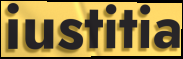
iustitia